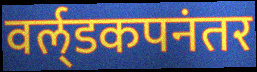
वर्ल्डकपनंतर